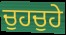
ਚੁਹਚੁਹੇ